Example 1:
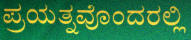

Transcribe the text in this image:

ಪ್ರಯತ್ನವೊಂದರಲ್ಲಿ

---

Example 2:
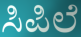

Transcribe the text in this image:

ಸಿಪಿಲೆ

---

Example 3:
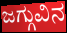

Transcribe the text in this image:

ಜಗ್ಗುವಿನ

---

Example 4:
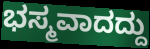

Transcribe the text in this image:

ಭಸ್ಮವಾದದ್ದು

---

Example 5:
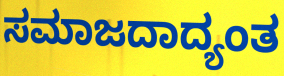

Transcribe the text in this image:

ಸಮಾಜದಾದ್ಯಂತ